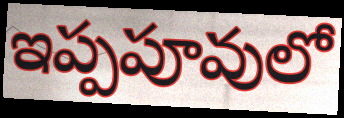
ఇప్పపూవులో